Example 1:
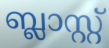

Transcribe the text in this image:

ബ്ലാസ്റ്റ്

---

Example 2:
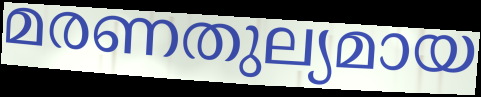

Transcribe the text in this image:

മരണതുല്യമായ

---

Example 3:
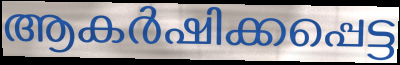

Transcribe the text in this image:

ആകർഷിക്കപ്പെട്ട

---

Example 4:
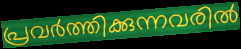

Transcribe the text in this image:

പ്രവർത്തിക്കുന്നവരിൽ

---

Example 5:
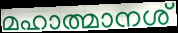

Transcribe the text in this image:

മഹാത്മാനശ്